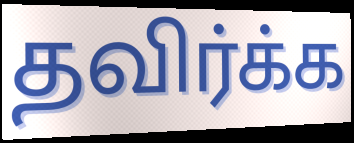
தவிர்க்க